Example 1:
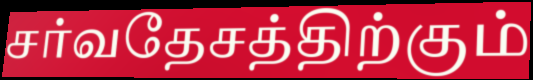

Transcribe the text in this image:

சர்வதேசத்திற்கும்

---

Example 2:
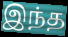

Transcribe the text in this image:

இந்த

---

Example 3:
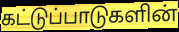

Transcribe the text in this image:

கட்டுப்பாடுகளின்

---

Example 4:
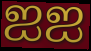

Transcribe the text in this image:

ஐஐ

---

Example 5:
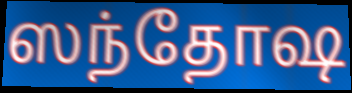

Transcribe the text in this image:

ஸந்தோஷ